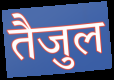
तैजुल